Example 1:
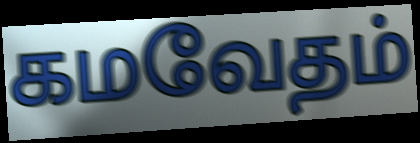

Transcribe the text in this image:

கமவேதம்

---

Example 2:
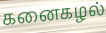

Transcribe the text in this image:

கனைகழல்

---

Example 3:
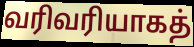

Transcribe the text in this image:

வரிவரியாகத்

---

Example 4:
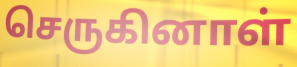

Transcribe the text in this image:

செருகினாள்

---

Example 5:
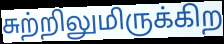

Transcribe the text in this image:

சுற்றிலுமிருக்கிற